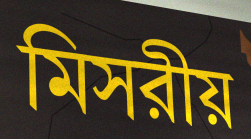
মিসরীয়